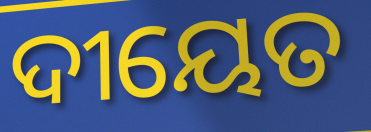
ଦୀୟେତ